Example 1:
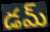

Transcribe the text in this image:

డమ్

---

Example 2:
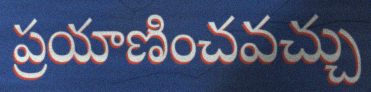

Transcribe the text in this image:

ప్రయాణించవచ్చు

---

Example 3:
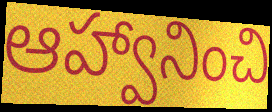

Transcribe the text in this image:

ఆహ్వానించి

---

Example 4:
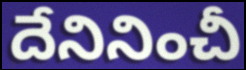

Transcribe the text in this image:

దేనినించీ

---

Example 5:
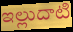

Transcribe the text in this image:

ఇల్లుదాటి